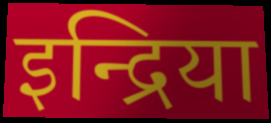
इन्द्रिया